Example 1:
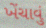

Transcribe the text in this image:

ખેંચાવું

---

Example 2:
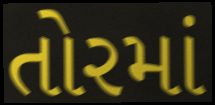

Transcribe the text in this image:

તોરમાં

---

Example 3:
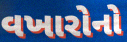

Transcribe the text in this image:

વખારોનો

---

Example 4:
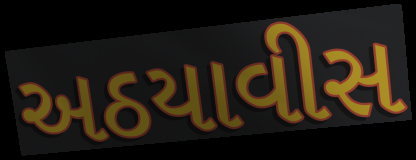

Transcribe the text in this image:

અઠયાવીસ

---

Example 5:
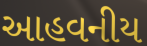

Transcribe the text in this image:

આહવનીય